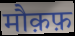
मौक़फ़